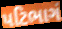
પટિભાગં